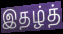
இதழ்த்